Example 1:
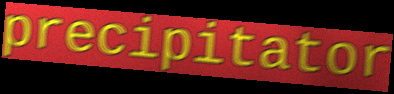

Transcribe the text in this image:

precipitator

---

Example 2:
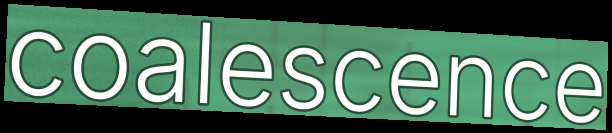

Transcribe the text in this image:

coalescence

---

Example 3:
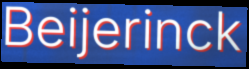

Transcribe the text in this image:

Beijerinck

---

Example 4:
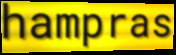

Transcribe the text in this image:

hampras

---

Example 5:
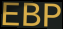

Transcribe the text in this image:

EBP